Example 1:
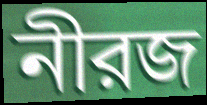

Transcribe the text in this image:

নীরজ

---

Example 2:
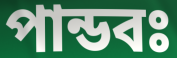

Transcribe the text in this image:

পান্ডবঃ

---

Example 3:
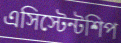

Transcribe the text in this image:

এসিস্টেন্টশিপ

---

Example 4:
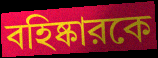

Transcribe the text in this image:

বহিষ্কারকে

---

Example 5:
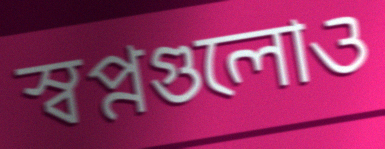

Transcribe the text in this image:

স্বপ্নগুলোও